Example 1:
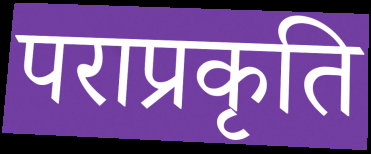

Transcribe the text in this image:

पराप्रकृति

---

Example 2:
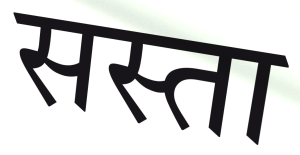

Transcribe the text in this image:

सस्‍ता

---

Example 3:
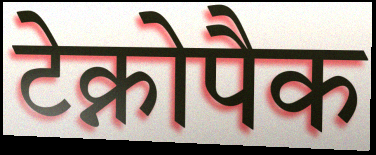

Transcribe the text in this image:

टेक्नोपैक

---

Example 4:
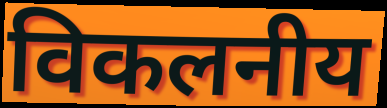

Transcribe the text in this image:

विकलनीय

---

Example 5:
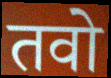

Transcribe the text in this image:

तवो